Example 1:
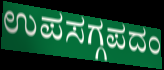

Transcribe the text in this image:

ಉಪಸಗ್ಗಪದಂ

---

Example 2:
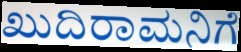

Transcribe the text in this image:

ಖುದಿರಾಮನಿಗೆ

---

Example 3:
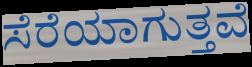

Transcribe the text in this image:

ಸೆರೆಯಾಗುತ್ತವೆ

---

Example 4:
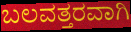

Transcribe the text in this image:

ಬಲವತ್ತರವಾಗಿ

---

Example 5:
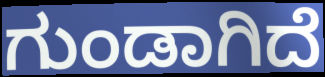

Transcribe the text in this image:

ಗುಂಡಾಗಿದೆ